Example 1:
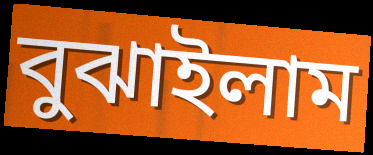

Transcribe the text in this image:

বুঝাইলাম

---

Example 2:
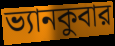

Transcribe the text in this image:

ভ্যানকুবার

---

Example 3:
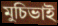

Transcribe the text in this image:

মুচিভাই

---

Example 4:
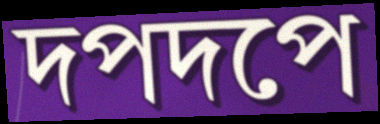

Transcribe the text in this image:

দপদপে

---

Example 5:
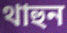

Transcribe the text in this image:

থাহুন